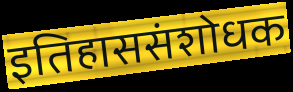
इतिहाससंशोधक